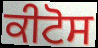
ਕੀਟੋਸ